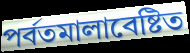
পর্বতমালাবেষ্টিত